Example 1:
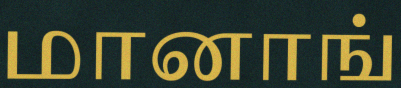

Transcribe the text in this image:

மானாங்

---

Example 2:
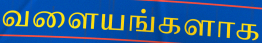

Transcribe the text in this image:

வளையங்களாக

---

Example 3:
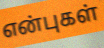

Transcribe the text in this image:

என்புகள்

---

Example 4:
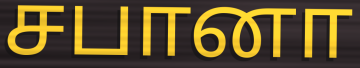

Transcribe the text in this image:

சபானா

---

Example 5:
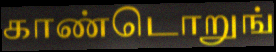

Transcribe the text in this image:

காண்டொறுங்